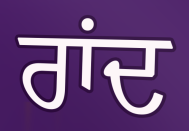
ਰਾਂਦ